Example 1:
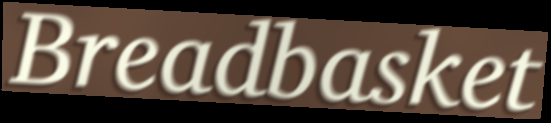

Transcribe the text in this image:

Breadbasket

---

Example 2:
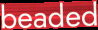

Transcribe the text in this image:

beaded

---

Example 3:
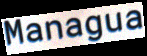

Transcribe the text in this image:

Managua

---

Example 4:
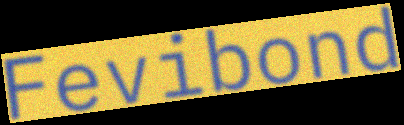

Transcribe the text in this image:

Fevibond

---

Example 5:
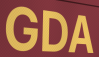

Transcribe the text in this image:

GDA